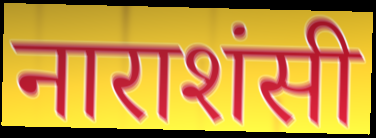
नाराशंसी